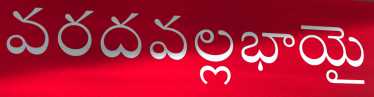
వరదవల్లభాయై